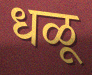
धळू